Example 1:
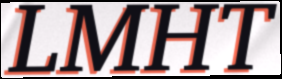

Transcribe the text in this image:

LMHT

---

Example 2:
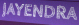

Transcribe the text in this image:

JAYENDRA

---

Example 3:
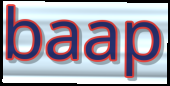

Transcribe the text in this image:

baap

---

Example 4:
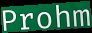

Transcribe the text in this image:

Prohm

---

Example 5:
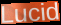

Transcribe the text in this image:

Lucid